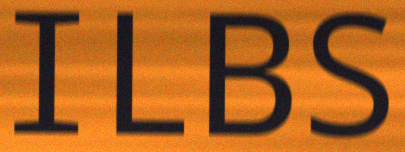
ILBS